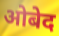
ओबेद